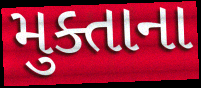
મુક્તાના